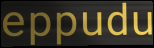
eppudu